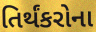
તિર્થંકરોના